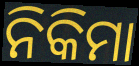
ନିକିମା